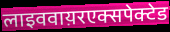
लाइववाय़रएक्सपेक्टेड